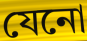
যেনো